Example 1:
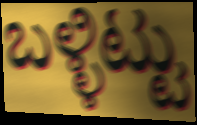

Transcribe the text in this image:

ಬಳ್ಳಿಟ್ಟು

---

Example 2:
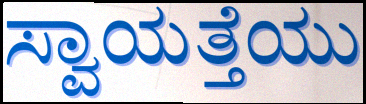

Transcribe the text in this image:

ಸ್ವಾಯತ್ತೆಯು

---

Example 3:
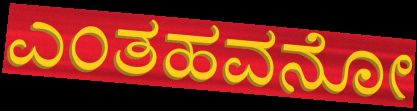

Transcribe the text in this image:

ಎಂತಹವನೋ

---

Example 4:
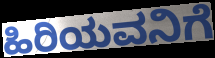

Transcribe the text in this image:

ಹಿರಿಯವನಿಗೆ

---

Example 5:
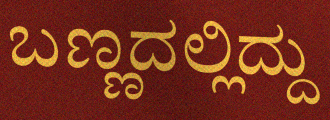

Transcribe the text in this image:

ಬಣ್ಣದಲ್ಲಿದ್ದು